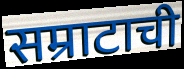
सम्राटाची